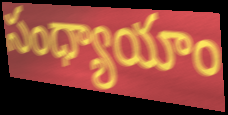
సంధ్యాయాం